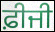
ਫ਼ੀਜੀ